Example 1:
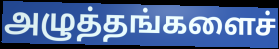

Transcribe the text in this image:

அழுத்தங்களைச்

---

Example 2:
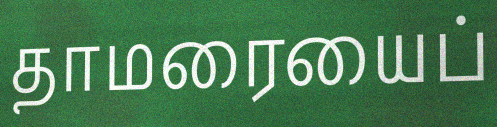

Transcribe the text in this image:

தாமரையைப்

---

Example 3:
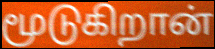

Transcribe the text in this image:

மூடுகிறான்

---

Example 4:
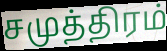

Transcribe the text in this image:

சமுத்திரம்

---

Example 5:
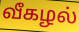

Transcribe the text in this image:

வீகழல்